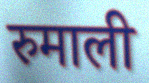
रुमाली